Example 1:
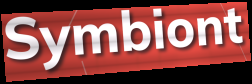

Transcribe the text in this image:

Symbiont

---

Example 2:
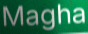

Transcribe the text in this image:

Magha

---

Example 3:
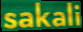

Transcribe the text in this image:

sakali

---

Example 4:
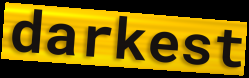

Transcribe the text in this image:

darkest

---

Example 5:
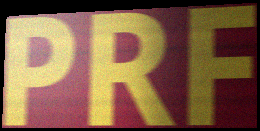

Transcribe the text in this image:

PRF